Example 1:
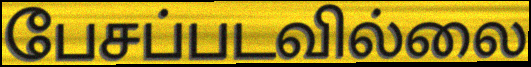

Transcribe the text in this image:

பேசப்படவில்லை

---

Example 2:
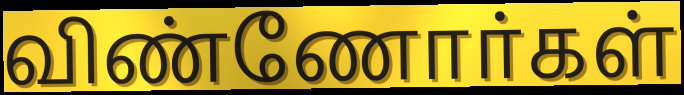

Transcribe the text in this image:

விண்ணோர்கள்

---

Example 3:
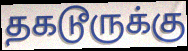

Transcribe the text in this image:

தகடூருக்கு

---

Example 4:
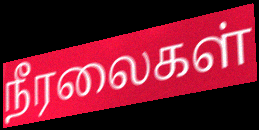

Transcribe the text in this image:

நீரலைகள்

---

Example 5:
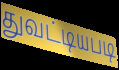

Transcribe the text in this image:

துவட்டியபடி